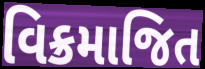
વિક્રમાજિત